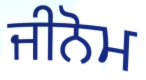
ਜੀਨੋਮ